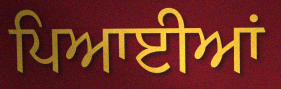
ਪਿਆਈਆਂ